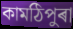
কামঠিপুৰা